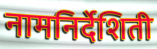
नामनिर्देशिती